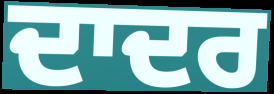
ਦਾਦਰ